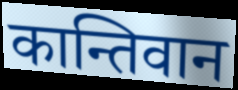
कान्तिवान